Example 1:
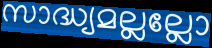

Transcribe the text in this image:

സാദ്ധ്യമല്ലല്ലോ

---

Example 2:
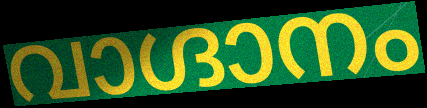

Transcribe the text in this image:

വാഗ്ദാനം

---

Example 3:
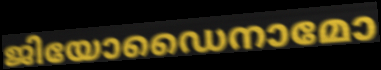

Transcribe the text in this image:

ജിയോഡൈനാമോ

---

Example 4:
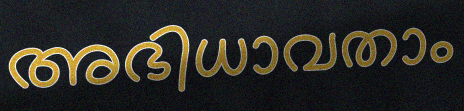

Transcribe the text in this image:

അഭിധാവതാം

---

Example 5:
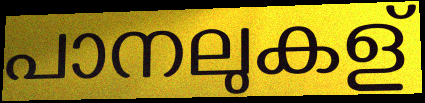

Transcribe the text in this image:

പാനലുകള്